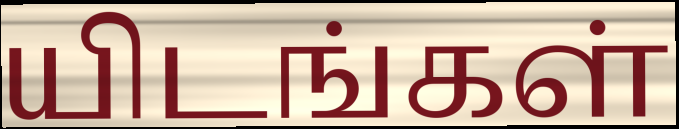
யிடங்கள்